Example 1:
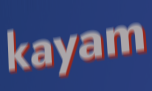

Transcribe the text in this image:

kayam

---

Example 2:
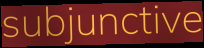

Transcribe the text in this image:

subjunctive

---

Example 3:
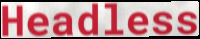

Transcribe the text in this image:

Headless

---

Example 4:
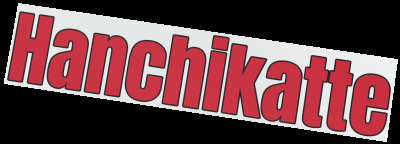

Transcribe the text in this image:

Hanchikatte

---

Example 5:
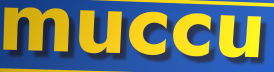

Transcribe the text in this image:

muccu